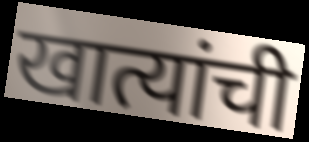
खात्यांची